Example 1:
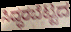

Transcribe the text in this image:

ಸಿದ್ಧರಬೆಟ್ಟದ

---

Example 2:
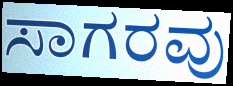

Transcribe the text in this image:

ಸಾಗರವು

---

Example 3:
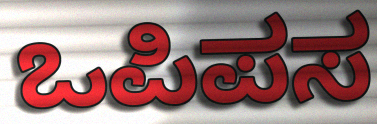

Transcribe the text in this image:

ಒಪಿಪಸ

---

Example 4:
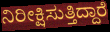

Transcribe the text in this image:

ನಿರೀಕ್ಷಿಸುತ್ತಿದ್ದಾರೆ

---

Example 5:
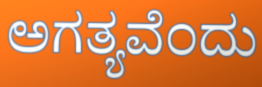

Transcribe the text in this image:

ಅಗತ್ಯವೆಂದು